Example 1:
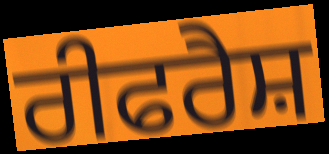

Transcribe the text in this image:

ਰੀਫਰੈਸ਼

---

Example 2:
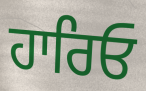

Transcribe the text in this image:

ਹਾਰਿਓ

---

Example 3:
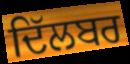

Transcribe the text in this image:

ਦਿੱਲਬਰ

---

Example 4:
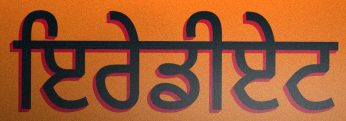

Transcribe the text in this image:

ਇਰੇਡੀਏਟ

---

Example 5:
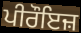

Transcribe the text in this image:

ਪੀਰੌਇਜ਼